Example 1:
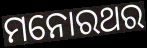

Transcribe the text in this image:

ମନୋରଥର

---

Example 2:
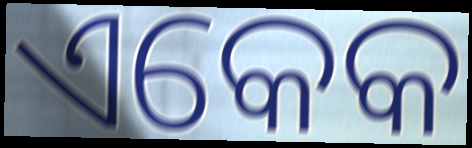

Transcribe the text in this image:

ଏକେକ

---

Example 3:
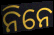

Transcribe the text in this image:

ନିନେ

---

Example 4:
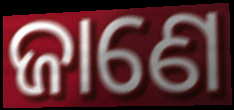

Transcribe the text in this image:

ଜାଣେ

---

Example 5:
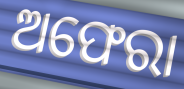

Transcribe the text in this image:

ଅଫେରା